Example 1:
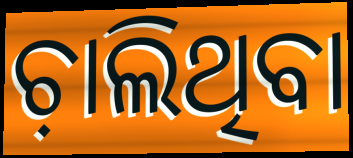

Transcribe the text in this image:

ଚ଼ାଲିଥିବା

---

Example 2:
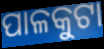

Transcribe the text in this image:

ପାଳକୁଟା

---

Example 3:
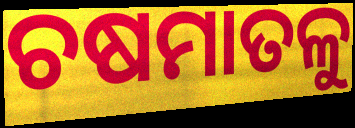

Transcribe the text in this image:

ଚଷମାତଳୁ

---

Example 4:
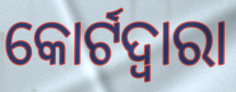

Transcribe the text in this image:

କୋର୍ଟଦ୍ୱାରା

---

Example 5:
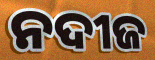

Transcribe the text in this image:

ନଦୀଜ